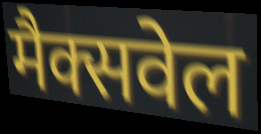
मैक्‍सवेल